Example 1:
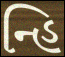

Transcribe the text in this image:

ન્હિ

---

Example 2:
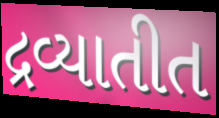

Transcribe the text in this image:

દ્રવ્યાતીત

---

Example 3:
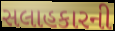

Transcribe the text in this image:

સલાહકારની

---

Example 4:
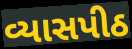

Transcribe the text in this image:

વ્યાસપીઠ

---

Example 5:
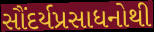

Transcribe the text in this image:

સૌંદર્યપ્રસાધનોથી